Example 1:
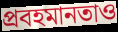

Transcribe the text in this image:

প্রবহমানতাও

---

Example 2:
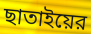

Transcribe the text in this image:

ছাতাইয়ের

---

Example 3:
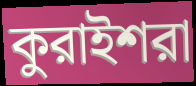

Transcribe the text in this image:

কুরাইশরা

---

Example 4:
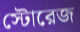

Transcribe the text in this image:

স্টোরেজ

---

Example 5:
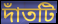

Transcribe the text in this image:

দাঁতটি